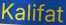
Kalifat